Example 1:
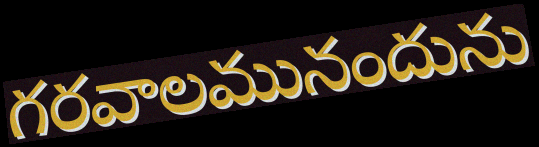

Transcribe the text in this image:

గరవాలమునందును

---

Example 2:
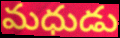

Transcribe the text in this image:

మధుడు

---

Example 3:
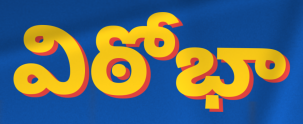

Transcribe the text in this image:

విఠోభా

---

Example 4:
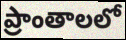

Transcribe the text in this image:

ప్రాంతాలలో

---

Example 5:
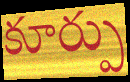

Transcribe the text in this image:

కూర్పు